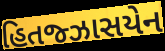
હિતજ્ઝાસયેન